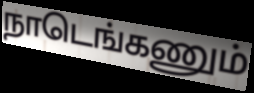
நாடெங்கணும்